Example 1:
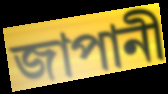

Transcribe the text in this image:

জাপানী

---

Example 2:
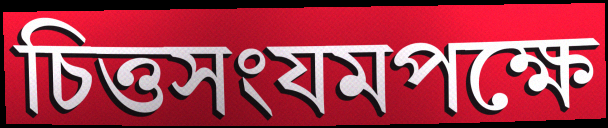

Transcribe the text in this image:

চিত্তসংযমপক্ষে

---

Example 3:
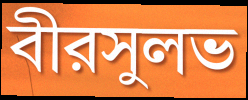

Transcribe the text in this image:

বীরসুলভ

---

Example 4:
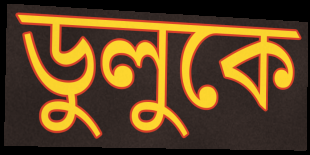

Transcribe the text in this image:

ডুলুকে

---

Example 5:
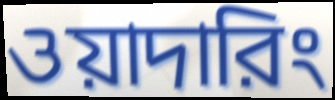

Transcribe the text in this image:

ওয়াদারিং